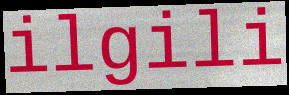
ilgili